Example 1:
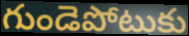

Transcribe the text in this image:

గుండెపోటుకు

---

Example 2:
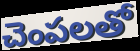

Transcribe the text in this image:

చెంపలతో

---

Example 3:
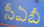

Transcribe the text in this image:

సీఏబీ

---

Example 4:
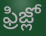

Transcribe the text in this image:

ఫ్రిజ్లో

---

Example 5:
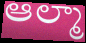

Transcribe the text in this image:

ఆల్మా